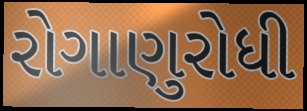
રોગાણુરોધી